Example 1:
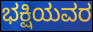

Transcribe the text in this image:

ಭಕ್ಷಿಯವರ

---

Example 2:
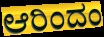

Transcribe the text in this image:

ಆರಿಂದಂ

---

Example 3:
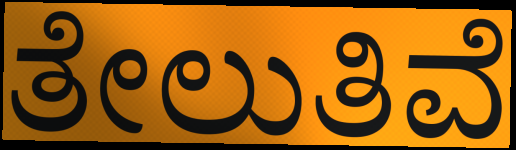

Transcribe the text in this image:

ತೇಲುತಿವೆ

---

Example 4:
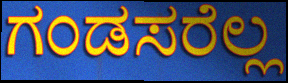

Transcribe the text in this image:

ಗಂಡಸರೆಲ್ಲ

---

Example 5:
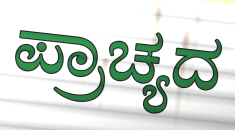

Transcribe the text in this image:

ಪ್ರಾಚ್ಯದ